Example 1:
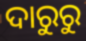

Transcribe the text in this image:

ଦାରୁରୁ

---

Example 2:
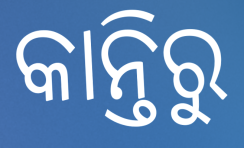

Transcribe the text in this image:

କାନ୍ତିରୁ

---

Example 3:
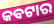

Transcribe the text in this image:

କବଟାର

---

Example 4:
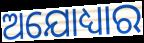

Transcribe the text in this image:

ଅଯୋଧ୍ୟାର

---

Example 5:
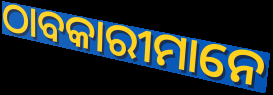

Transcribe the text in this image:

ଠାବକାରୀମାନେ